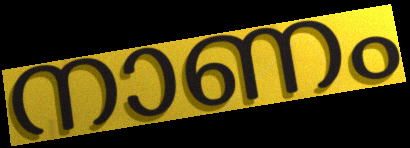
നാണം